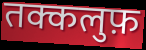
तक्कलुफ़